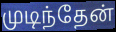
முடிந்தேன்